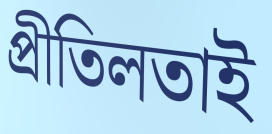
প্ৰীতিলতাই